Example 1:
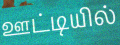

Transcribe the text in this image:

ஊட்டியில்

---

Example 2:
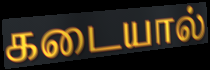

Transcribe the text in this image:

கடையால்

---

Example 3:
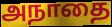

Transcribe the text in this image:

அநாதை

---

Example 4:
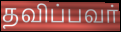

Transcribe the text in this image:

தவிப்பவர்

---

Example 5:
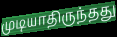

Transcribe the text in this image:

முடியாதிருந்தது